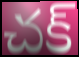
చక్